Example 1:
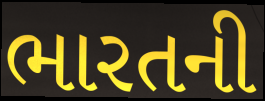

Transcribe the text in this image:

ભારતની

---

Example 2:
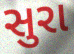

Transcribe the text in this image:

સુરા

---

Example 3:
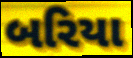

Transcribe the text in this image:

બરિયા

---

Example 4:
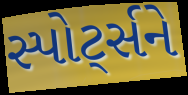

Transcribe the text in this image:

સ્પોર્ટ્સને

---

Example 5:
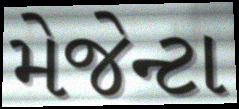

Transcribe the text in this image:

મેજેન્ટા